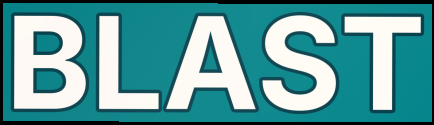
BLAST